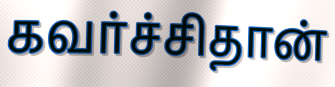
கவர்ச்சிதான்